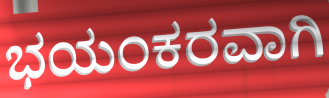
ಭಯಂಕರವಾಗಿ